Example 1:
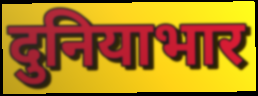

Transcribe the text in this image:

दुनियाभार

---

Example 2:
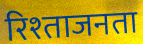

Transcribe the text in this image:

रिश्ताजनता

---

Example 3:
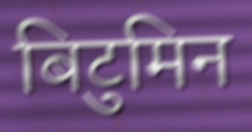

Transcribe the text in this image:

बिटुमिन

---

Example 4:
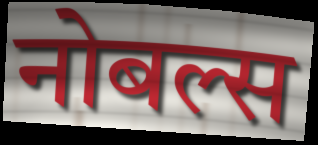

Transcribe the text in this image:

नोबल्स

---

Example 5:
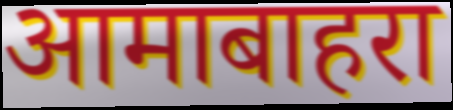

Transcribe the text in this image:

आमाबाहरा